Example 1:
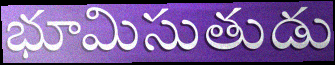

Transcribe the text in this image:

భూమిసుతుడు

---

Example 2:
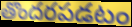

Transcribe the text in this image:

తొందరపడటం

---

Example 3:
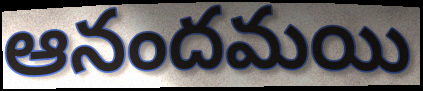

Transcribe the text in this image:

ఆనందమయి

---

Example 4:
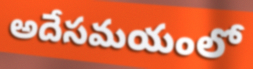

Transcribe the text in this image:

అదేసమయంలో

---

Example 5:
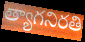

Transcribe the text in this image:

త్యాగనిరతి